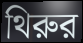
থিরুর